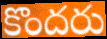
కొందరు